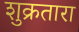
शुक्रतारा